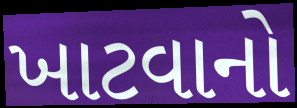
ખાટવાનો